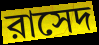
রাসেদ